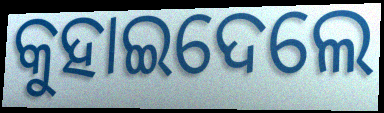
କୁହାଇଦେଲେ